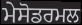
ਮੇਸੋਡਰਮਲ